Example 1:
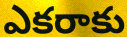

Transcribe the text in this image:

ఎకరాకు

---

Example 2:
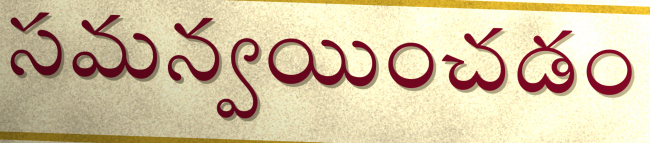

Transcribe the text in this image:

సమన్వయించడం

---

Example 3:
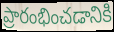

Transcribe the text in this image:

ప్రారంభించడానికి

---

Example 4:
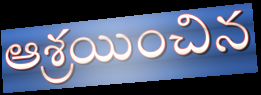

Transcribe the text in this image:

ఆశ్రయించిన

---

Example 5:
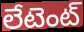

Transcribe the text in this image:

లేటెంట్